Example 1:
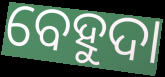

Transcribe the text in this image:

ବେହୁଦା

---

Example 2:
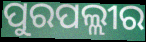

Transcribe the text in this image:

ପୁରପଲ୍ଲୀର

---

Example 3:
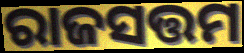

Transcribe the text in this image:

ରାଜସତ୍ତମ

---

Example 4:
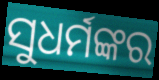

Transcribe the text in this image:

ସୁଧର୍ମଙ୍କର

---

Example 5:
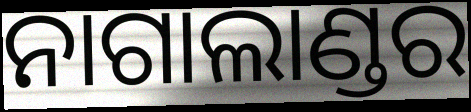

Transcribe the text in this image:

ନାଗାଲାଣ୍ଡର